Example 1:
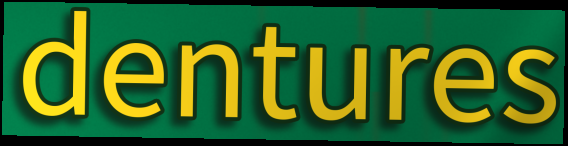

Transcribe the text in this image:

dentures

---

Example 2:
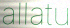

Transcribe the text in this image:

allatu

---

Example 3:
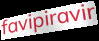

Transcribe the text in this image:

favipiravir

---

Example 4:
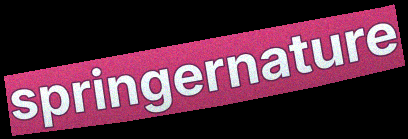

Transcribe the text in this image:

springernature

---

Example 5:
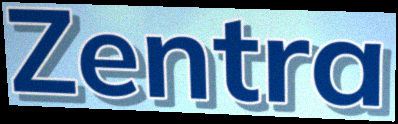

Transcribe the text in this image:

Zentra